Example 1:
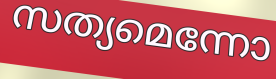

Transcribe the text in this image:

സത്യമെന്നോ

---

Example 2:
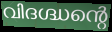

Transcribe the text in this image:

വിദഗ്ദ്ധന്റെ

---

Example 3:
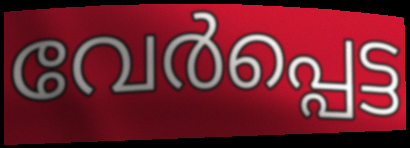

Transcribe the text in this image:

വേർപ്പെട്ട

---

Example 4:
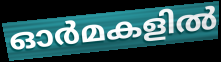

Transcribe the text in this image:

ഓർമകളിൽ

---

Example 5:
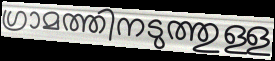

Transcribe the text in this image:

ഗ്രാമത്തിനടുത്തുള്ള